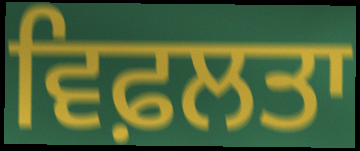
ਵਿਫ਼ਲਤਾ